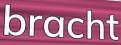
bracht